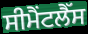
ਸੀਮੈਂਟਲੈੱਸ